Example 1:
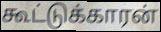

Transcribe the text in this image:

கூட்டுக்காரன்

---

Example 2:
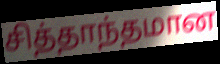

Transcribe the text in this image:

சித்தாந்தமான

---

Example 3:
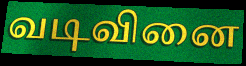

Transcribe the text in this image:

வடிவினை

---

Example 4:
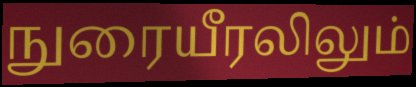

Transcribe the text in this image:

நுரையீரலிலும்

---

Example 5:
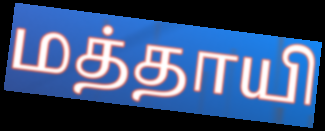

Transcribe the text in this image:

மத்தாயி